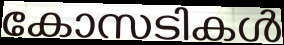
കോസടികൾ